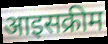
आइसक्रीम